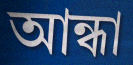
আন্ধা